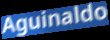
Aguinaldo